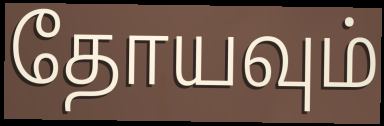
தோயவும்